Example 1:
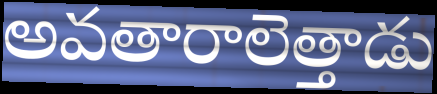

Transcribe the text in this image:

అవతారాలెత్తాడు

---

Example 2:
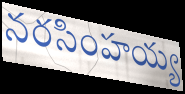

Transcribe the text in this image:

నరసింహయ్య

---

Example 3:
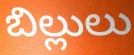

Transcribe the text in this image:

బిల్లులు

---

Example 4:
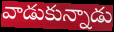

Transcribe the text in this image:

వాడుకున్నాడు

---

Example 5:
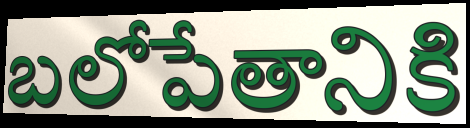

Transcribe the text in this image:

బలోపేతానికి